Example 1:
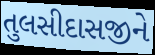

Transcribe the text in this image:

તુલસીદાસજીને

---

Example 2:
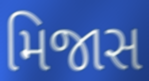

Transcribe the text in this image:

મિજાસ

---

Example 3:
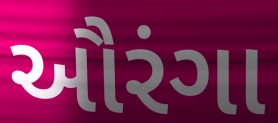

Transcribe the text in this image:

ઔરંગા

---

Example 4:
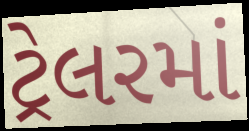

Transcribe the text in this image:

ટ્રેલરમાં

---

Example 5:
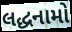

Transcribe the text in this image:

લદ્ધનામો